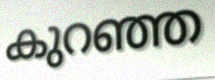
കുറഞ്ഞ